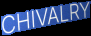
CHIVALRY